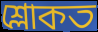
শ্লোকত